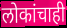
लोकांचाही